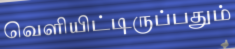
வெளியிட்டிருப்பதும்